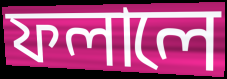
ফলালে